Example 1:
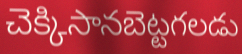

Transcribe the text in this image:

చెక్కిసానబెట్టగలడు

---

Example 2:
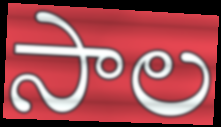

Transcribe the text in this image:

సాల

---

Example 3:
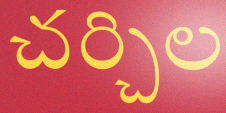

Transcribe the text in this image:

చర్చిల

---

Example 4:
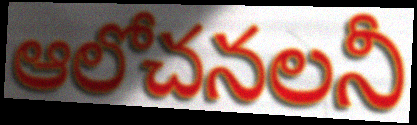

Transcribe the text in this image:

ఆలోచనలనీ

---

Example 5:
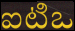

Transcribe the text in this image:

ఐటిఒ